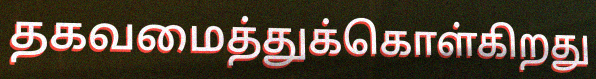
தகவமைத்துக்கொள்கிறது